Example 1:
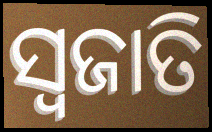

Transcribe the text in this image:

ସ୍ବଜାତି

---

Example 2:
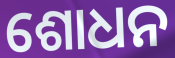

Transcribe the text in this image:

ଶୋଧନ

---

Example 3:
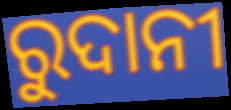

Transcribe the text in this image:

ରୁଦାନୀ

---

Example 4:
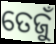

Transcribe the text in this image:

ତେଜୁଁ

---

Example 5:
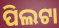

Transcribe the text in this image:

ପିଲଟା